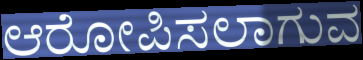
ಆರೋಪಿಸಲಾಗುವ